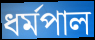
ধর্মপাল